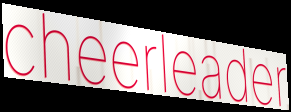
cheerleader